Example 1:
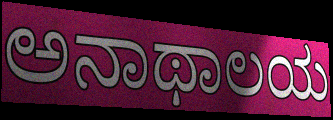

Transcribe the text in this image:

ಅನಾಥಾಲಯ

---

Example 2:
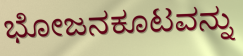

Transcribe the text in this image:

ಭೋಜನಕೂಟವನ್ನು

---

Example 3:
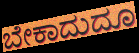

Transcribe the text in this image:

ಬೇಕಾದುದೂ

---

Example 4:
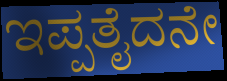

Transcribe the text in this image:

ಇಪ್ಪತೈದನೇ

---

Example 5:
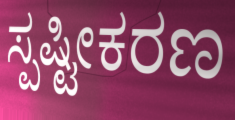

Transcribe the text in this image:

ಸ್ಪಷ್ಟೀಕರಣ